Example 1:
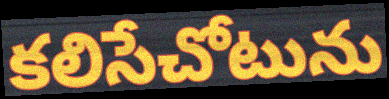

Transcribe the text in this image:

కలిసేచోటును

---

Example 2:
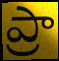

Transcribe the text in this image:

ప్రా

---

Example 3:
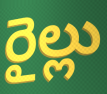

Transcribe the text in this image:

రైల్లు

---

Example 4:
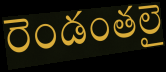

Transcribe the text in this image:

రెండంతలై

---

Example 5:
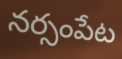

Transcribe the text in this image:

నర్సంపేట